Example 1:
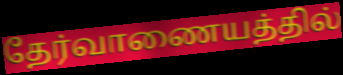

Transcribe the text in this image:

தேர்வாணையத்தில்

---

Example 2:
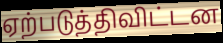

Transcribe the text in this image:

ஏற்படுத்திவிட்டன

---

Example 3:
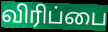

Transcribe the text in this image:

விரிப்பை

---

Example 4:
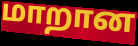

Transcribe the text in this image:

மாறான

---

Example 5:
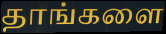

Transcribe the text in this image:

தாங்களை